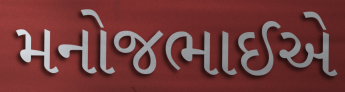
મનોજભાઈએ